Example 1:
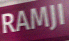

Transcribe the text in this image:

RAMJI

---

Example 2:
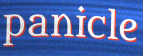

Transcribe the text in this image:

panicle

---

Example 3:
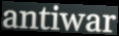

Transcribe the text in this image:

antiwar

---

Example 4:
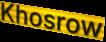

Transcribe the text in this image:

Khosrow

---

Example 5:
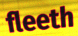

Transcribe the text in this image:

fleeth